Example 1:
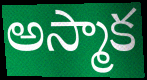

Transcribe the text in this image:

అస్మాక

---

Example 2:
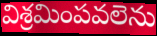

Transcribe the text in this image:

విశ్రమింపవలెను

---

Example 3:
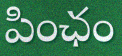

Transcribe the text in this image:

పింఛం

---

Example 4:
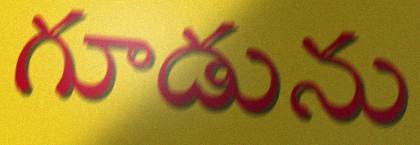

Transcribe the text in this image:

గూడును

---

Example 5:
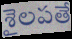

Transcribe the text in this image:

శైలపతే